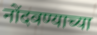
नोंदवण्याच्या